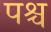
पश्च